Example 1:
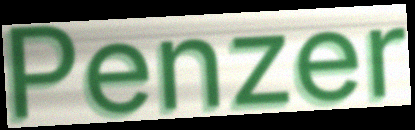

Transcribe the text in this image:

Penzer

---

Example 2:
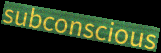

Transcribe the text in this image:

subconscious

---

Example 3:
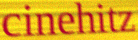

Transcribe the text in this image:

cinehitz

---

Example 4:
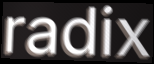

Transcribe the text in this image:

radix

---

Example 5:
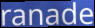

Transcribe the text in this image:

ranade